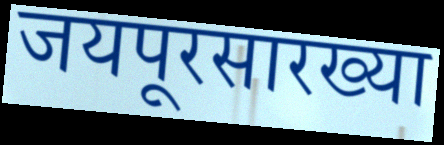
जयपूरसारख्या